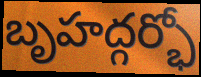
బృహద్గర్భో